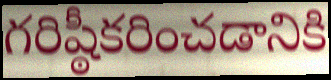
గరిష్ఠీకరించడానికి